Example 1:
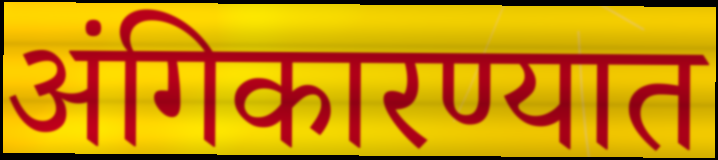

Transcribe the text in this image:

अंगिकारण्यात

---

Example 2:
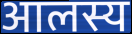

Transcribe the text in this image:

आलस्य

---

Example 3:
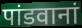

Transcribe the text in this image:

पांडवानां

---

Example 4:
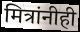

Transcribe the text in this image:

मित्रांनीही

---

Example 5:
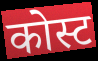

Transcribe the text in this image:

कोस्ट